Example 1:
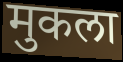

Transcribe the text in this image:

मुकला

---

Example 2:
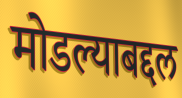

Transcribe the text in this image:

मोडल्याबद्दल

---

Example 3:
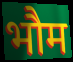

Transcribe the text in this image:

भौम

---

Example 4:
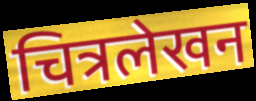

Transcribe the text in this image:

चित्रलेखन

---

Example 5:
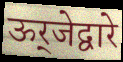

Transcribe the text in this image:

ऊर्जेद्वारे